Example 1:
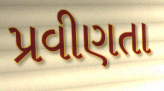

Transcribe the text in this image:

પ્રવીણતા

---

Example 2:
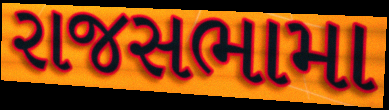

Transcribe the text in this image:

રાજસભામા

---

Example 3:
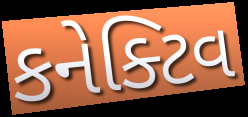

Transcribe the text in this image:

કનેક્ટિવ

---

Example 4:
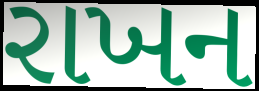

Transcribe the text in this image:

રાખન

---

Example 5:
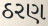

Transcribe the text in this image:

ઠરણ